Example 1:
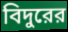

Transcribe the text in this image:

বিদুরের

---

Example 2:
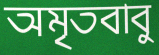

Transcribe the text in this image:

অমৃতবাবু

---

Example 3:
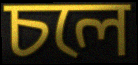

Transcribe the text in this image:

চলে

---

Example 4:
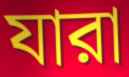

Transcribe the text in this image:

যারা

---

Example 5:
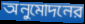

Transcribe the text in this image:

অনুমোদনের